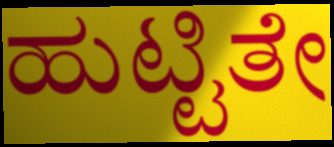
ಹುಟ್ಟಿತೇ